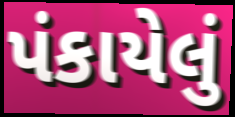
પંકાયેલું